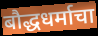
बौद्धधर्माचा